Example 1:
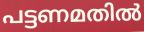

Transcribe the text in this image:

പട്ടണമതിൽ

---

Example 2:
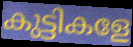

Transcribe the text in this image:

കുട്ടികളേ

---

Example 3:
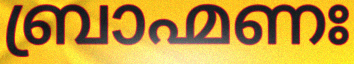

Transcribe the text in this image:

ബ്രാഹ്മണഃ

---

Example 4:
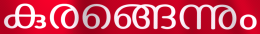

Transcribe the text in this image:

കുരങ്ങെന്നും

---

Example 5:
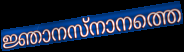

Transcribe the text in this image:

ജ്ഞാനസ്നാനത്തെ